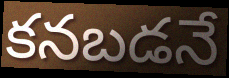
కనబడనే